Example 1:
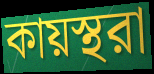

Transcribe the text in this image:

কায়স্থরা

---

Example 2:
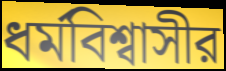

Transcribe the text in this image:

ধর্মবিশ্বাসীর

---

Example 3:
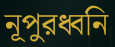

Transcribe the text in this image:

নূপুরধ্বনি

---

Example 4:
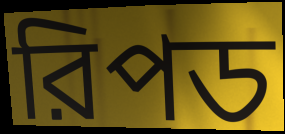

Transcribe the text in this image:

রিপড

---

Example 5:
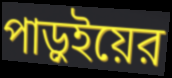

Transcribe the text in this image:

পাড়ুইয়ের